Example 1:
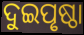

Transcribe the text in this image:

ଦୁଇପୃଷ୍ଠା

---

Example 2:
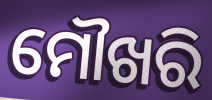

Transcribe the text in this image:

ମୌଖରି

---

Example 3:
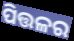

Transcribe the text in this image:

ପିତ୍ତଳର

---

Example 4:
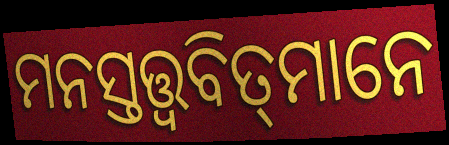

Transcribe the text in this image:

ମନସ୍ତତ୍ତ୍ୱବିତ୍‌ମାନେ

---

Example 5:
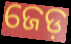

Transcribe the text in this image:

ଜେଡ଼